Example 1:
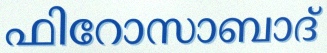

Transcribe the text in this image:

ഫിറോസാബാദ്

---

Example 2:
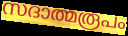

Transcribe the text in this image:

സദാത്മരൂപം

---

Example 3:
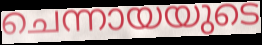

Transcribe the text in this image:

ചെന്നായയുടെ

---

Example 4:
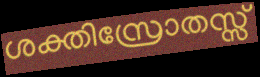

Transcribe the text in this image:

ശക്തിസ്രോതസ്സ്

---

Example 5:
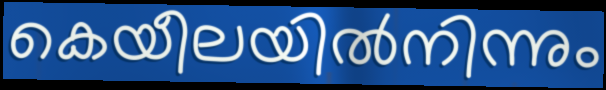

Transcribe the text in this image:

കെയീലയിൽനിന്നും